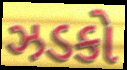
ઝડકો